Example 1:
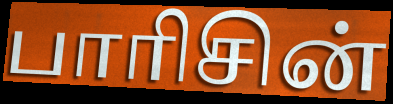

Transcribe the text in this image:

பாரிசின்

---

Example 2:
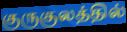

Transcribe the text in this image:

குருகுலத்தில்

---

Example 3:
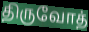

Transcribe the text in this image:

திருவோத்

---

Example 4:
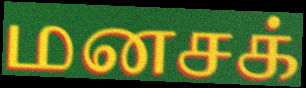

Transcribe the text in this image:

மனசக்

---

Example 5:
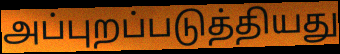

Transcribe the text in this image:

அப்புறப்படுத்தியது